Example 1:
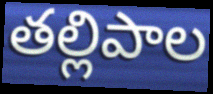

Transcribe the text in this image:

తల్లిపాల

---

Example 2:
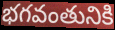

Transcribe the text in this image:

భగవంతునికి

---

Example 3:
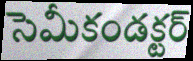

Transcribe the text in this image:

సెమీకండక్టర్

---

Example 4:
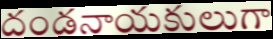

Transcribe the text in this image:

దండనాయకులుగా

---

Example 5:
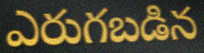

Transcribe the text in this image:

ఎరుగబడిన